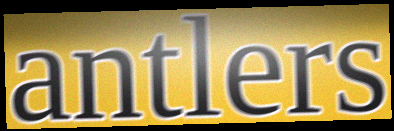
antlers